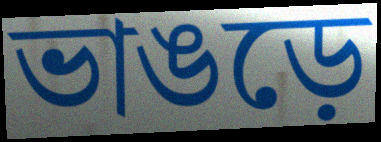
ভাঙড়ে